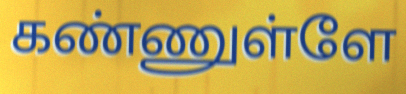
கண்ணுள்ளே